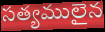
సత్యములైన